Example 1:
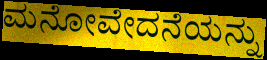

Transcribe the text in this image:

ಮನೋವೇದನೆಯನ್ನು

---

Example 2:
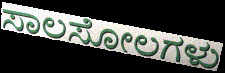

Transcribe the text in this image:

ಸಾಲಸೋಲಗಳು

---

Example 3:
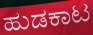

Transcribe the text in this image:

ಹುಡಕಾಟ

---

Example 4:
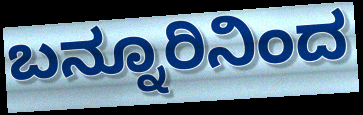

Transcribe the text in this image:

ಬನ್ನೂರಿನಿಂದ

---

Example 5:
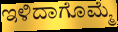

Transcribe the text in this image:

ಇಳಿದಾಗೊಮ್ಮೆ